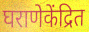
घराणेकेंद्रित